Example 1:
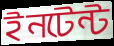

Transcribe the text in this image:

ইনটেন্ট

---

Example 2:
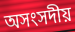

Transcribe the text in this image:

অসংসদীয়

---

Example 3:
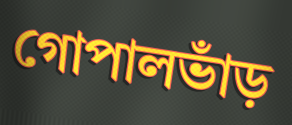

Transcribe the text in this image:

গোপালভাঁড়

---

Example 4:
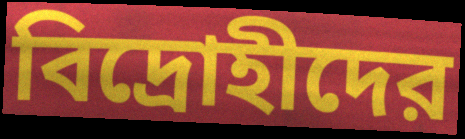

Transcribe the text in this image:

বিদ্রোহীদের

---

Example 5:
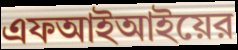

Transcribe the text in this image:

এফআইআইয়ের